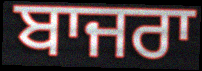
ਬਾਜਰਾ